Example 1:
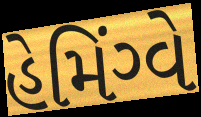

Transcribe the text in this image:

હેમિંગ્વે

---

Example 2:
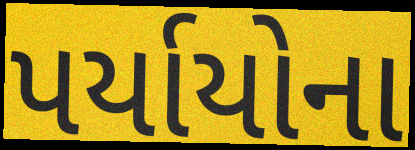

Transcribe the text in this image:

પર્યાયોના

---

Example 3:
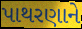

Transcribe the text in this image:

પાથરણાને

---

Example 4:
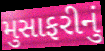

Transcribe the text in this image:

મુસાફરીનું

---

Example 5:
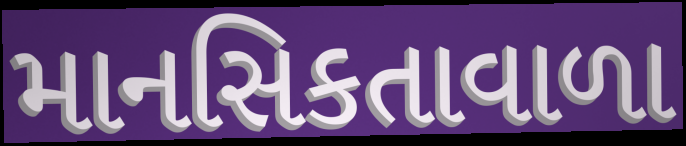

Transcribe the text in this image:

માનસિકતાવાળા